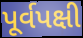
પૂર્વપક્ષી